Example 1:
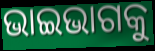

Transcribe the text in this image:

ଭାଇଭାଗକୁ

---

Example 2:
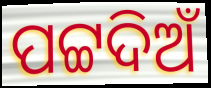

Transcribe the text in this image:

ପଟ୍ଟଦିଅଁ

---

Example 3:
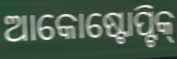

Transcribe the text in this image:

ଆକୋଷ୍ଟୋପ୍ଟିକ୍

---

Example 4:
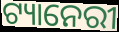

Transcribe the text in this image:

ଟ୍ୟାନେରୀ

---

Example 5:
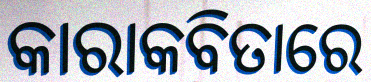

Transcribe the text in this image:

କାରାକବିତାରେ